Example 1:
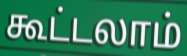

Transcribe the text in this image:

கூட்டலாம்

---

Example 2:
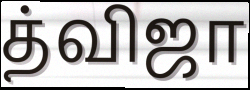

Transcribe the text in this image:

த்விஜா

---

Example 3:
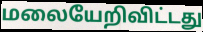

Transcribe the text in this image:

மலையேறிவிட்டது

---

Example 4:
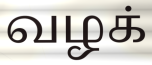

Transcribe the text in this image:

வழக்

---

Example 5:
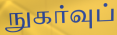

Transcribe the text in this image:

நுகர்வுப்